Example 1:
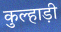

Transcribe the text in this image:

कुल्‍हाड़ी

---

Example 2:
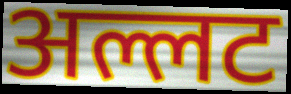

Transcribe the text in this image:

अल्लट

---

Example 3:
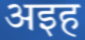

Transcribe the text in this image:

अइह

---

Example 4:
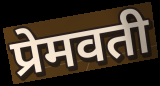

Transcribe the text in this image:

प्रेमवती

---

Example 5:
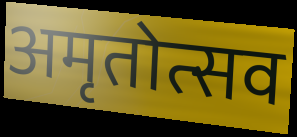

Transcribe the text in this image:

अमृतोत्सव